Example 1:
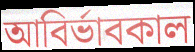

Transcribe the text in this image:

আবির্ভাবকাল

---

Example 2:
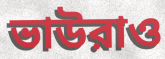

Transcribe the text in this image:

ভাউরাও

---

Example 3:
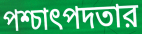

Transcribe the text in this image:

পশ্চাৎপদতার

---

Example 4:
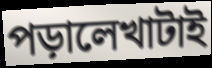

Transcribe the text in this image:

পড়ালেখাটাই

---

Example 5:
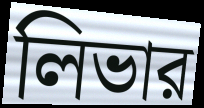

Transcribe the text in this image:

লিভার